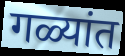
गळ्यांत